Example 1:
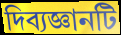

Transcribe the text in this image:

দিব্যজ্ঞানটি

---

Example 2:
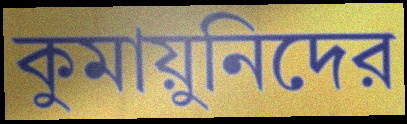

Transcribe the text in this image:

কুমায়ুনিদের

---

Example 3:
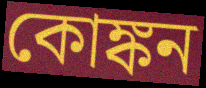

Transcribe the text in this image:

কোঙ্কন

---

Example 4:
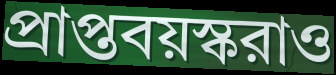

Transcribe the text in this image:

প্রাপ্তবয়স্করাও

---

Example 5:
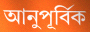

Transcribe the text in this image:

আনুপূর্বিক